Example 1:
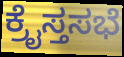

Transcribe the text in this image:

ಕ್ರೈಸ್ತಸಭೆ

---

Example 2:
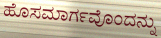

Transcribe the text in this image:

ಹೊಸಮಾರ್ಗವೊಂದನ್ನು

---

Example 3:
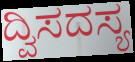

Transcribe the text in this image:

ದ್ವಿಸದಸ್ಯ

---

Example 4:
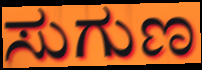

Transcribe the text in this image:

ಸುಗುಣ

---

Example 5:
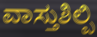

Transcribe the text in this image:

ವಾಸ್ತುಶಿಲ್ಪಿ